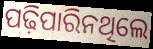
ପଢ଼ିପାରିନଥିଲେ